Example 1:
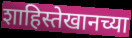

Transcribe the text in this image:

शाहिस्तेखानच्या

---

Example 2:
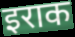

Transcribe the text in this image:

इराक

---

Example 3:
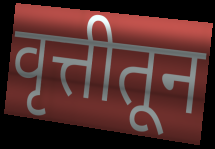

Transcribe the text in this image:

वृत्तीतून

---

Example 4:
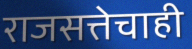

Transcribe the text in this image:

राजसत्तेचाही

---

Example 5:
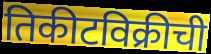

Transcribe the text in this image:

तिकीटविक्रीची